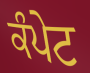
ਕੰਪੇਟ